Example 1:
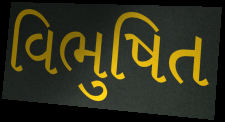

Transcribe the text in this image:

વિભુષિત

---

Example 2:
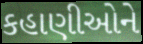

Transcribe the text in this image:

કહાણીઓને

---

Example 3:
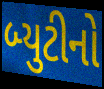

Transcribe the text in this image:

બ્યુટીનો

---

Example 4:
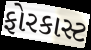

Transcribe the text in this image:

ફોરકાસ્ટ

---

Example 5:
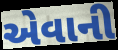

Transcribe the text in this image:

એવાની